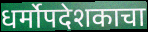
धर्मोपदेशकाचा